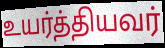
உயர்த்தியவர்